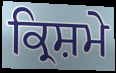
ਕ੍ਰਿਸ਼ਮੇ